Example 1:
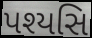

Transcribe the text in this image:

પશ્યસિ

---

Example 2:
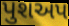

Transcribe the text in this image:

પુશઅપ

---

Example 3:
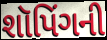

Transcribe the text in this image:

શૉપિંગની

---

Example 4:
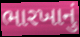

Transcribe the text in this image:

ભારખાનું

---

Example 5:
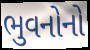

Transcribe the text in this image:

ભુવનોનો